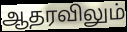
ஆதரவிலும்